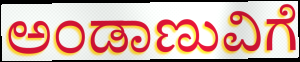
ಅಂಡಾಣುವಿಗೆ